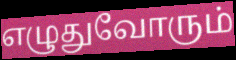
எழுதுவோரும்